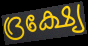
ദ്രക്ഷ്യേ